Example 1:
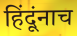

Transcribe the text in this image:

हिंदूंनाच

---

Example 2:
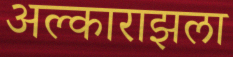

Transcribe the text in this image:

अल्काराझला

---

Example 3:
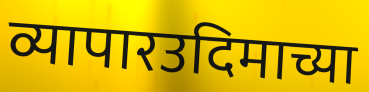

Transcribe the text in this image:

व्यापारउदिमाच्या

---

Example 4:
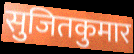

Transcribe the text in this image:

सुजितकुमार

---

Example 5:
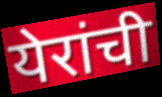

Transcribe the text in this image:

येरांची